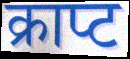
क्राप्ट